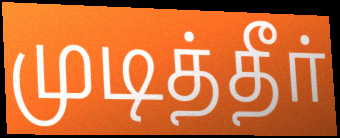
முடித்தீர்